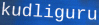
kudliguru